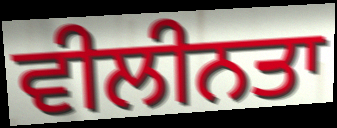
ਵੀਲੀਨਤਾ